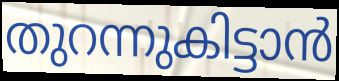
തുറന്നുകിട്ടാൻ